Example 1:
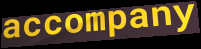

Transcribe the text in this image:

accompany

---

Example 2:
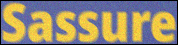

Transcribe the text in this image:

Sassure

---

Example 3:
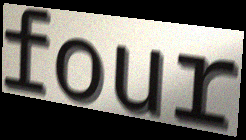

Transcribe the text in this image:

four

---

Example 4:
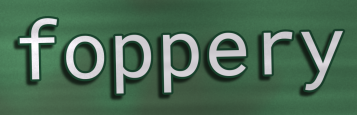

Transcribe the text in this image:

foppery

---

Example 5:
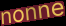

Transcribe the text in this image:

nonne